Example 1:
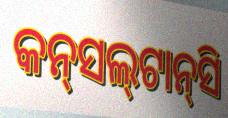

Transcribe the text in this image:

କନ୍‌ସଲ୍‌ଟାନ୍‌ସି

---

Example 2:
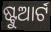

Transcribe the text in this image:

ଷ୍ଟୁଆର୍ଟ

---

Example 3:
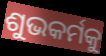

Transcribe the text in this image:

ଶୁଭକର୍ମକୁ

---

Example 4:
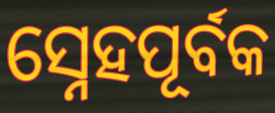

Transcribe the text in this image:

ସ୍ନେହପୂର୍ବକ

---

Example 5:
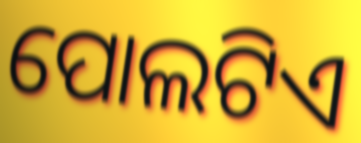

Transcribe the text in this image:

ପୋଲଟିଏ